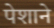
पेशाने